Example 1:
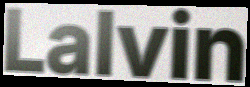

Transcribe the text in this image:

Lalvin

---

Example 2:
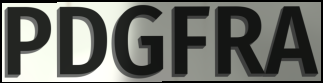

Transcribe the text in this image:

PDGFRA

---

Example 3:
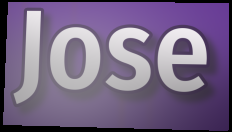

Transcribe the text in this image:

Jose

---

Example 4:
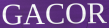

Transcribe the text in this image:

GACOR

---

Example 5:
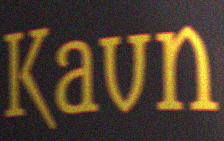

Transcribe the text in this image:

Kaun